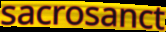
sacrosanct